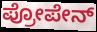
ಪ್ರೋಪೇನ್